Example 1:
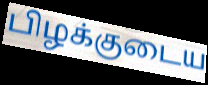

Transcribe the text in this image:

பிழக்குடைய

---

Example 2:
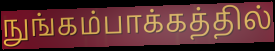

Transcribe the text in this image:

நுங்கம்பாக்கத்தில்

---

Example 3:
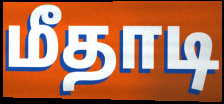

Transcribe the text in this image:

மீதாடி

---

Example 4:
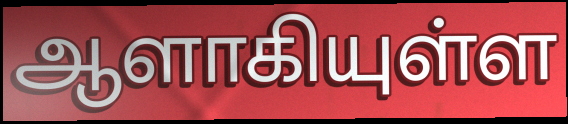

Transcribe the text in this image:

ஆளாகியுள்ள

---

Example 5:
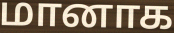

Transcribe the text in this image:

மானாக